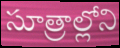
సూత్రాల్లోని